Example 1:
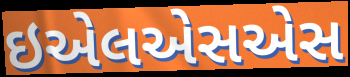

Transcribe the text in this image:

ઇએલએસએસ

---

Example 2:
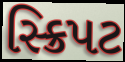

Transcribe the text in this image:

સ્ક્રિપટ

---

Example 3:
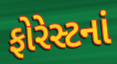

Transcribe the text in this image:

ફોરેસ્ટનાં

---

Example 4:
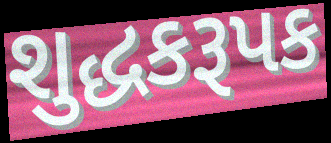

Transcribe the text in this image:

શુદ્ધકરૂપક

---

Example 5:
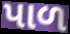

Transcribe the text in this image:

પાળ